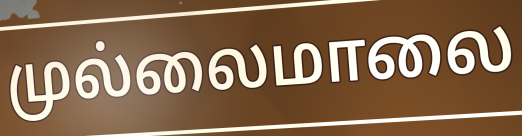
முல்லைமாலை